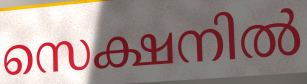
സെക്ഷനിൽ